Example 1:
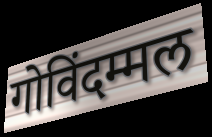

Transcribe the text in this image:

गोविंदम्मल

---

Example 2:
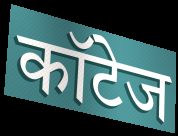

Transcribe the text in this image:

कॉटेज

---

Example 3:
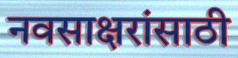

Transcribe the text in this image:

नवसाक्षरांसाठी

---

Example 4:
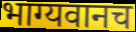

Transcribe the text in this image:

भाग्यवानच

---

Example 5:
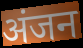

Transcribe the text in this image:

अंजन